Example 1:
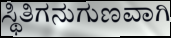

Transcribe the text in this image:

ಸ್ಥಿತಿಗನುಗುಣವಾಗಿ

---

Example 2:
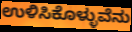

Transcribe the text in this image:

ಉಳಿಸಿಕೊಳ್ಳುವೆನು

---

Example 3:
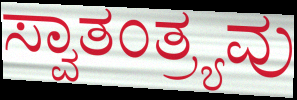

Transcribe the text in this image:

ಸ್ವಾತಂತ್ರ್ಯವು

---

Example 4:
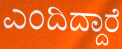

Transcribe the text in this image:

ಎಂದಿದ್ದಾರೆ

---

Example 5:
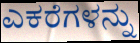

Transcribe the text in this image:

ಎಕರೆಗಳನ್ನು